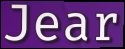
Jear